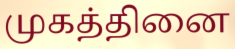
முகத்தினை